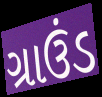
ગ્રાઉંડ